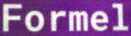
Formel